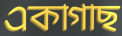
একাগাছ